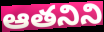
ఆతనిని